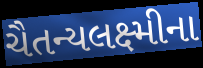
ચૈતન્યલક્ષ્મીના